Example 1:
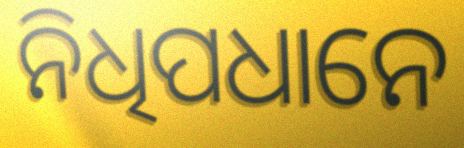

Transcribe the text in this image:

ନିଧିପଧାନେ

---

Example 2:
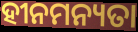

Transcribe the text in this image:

ହୀନମନ୍ୟତା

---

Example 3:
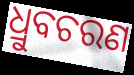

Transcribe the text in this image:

ଧ୍ରୁବଚରଣ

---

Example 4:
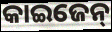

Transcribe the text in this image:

କାଇଜେନ୍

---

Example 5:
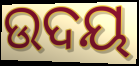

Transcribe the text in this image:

ଉଦୟ